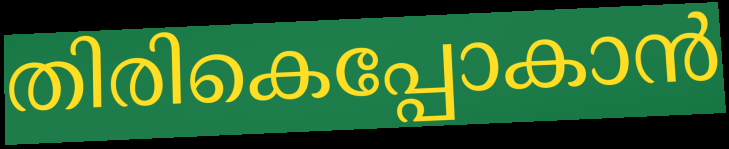
തിരികെപ്പോകാൻ